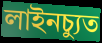
লাইনচ্যুত